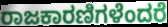
ರಾಜಕಾರಣಿಗಳೆಂದರೆ